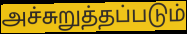
அச்சுறுத்தப்படும்